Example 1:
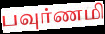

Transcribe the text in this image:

பவுர்ணமி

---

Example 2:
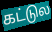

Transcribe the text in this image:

கட்டுல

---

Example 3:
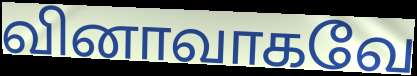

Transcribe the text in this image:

வினாவாகவே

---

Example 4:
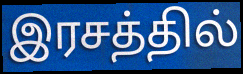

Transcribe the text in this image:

இரசத்தில்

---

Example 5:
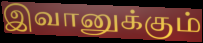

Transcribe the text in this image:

இவானுக்கும்